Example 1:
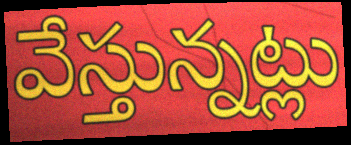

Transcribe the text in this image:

వేస్తున్నట్లు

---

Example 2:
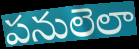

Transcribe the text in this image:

పనులెలా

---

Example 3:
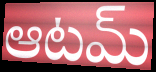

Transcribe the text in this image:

ఆటమ్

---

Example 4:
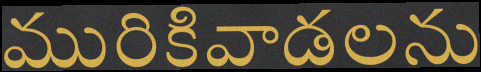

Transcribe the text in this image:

మురికివాడలను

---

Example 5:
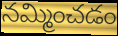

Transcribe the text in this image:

నమ్మించడం